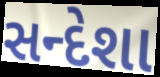
સન્દેશા